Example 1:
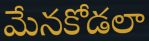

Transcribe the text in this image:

మేనకోడలా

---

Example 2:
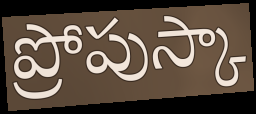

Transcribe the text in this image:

ప్రోపుస్కా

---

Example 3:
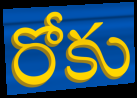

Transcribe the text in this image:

రోకు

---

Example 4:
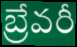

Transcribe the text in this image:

బ్రేవరీ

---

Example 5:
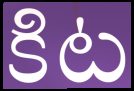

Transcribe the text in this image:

కిట